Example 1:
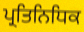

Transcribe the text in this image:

ਪ੍ਰਤਿਨਿਧਿਕ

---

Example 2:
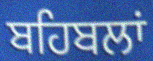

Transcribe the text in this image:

ਬਹਿਬਲਾਂ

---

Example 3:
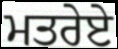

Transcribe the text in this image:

ਮਤਰੇਏ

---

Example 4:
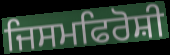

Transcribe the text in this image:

ਜਿਸਮਫਿਰੋਸ਼ੀ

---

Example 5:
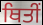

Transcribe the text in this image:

ਥਿਤੀਂ